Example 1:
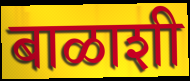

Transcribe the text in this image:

बाळाशी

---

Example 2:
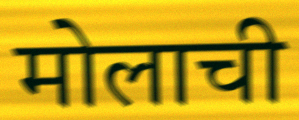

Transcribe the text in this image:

मोलाची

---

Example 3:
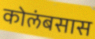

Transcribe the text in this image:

कोलंबसास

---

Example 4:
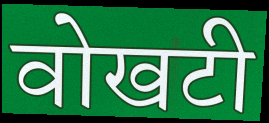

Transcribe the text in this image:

वोखटी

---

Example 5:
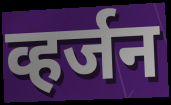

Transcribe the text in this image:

व्हर्जन